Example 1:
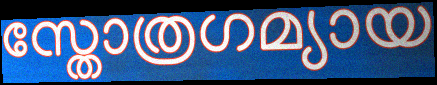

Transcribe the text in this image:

സ്തോത്രഗമ്യായ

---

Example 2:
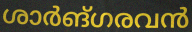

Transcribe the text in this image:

ശാർങ്ഗരവൻ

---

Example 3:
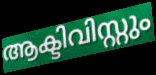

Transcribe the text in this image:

ആക്ടിവിസ്റ്റും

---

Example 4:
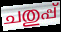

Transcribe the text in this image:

ചതുപ്പ്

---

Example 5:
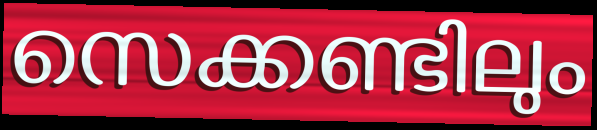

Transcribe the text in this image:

സെക്കണ്ടിലും